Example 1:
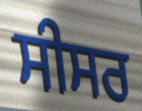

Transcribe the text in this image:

ਸੀਸਰ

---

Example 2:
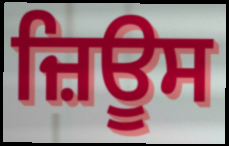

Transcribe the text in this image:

ਜ਼ਿਊਸ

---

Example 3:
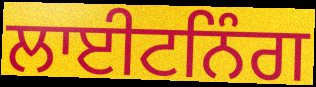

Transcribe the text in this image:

ਲਾਈਟਨਿੰਗ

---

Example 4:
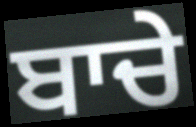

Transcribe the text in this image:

ਬਾਚੇ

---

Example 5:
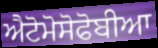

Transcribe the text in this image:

ਐਟੋਮੋਸੋਫੋਬੀਆ